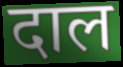
दाल